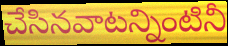
చేసినవాటన్నింటినీ